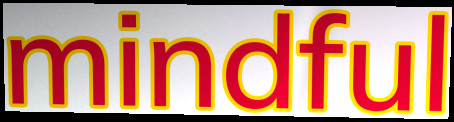
mindful